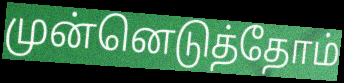
முன்னெடுத்தோம்